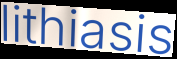
lithiasis